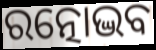
ରତ୍ନୋଦ୍ଭବ